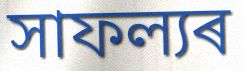
সাফল্যৰ